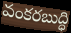
వంకరబుద్ధి